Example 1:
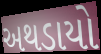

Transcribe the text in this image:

અથડાયો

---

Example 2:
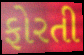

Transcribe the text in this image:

ફોરતી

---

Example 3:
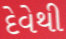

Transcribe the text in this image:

દેવેથી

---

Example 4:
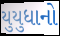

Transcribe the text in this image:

યુયુધાનો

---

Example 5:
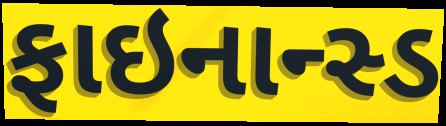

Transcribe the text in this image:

ફાઇનાન્સ્ડ